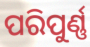
ପରିପୁର୍ଣ୍ଣ